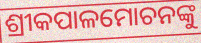
ଶ୍ରୀକପାଳମୋଚନଙ୍କୁ